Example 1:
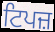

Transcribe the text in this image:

ਟਿਪਜ਼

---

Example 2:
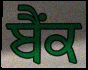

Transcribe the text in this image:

ਬੈਂਕ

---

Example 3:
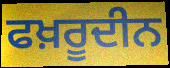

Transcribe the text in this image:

ਫਖ਼ਰੂਦੀਨ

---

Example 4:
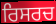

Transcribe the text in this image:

ਰਿਸਰਚ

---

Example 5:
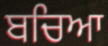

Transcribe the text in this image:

ਬਚਿਆ